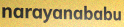
narayanababu